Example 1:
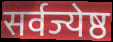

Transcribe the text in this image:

सर्वज्येष्ठ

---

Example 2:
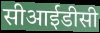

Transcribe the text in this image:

सीआईडीसी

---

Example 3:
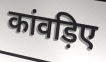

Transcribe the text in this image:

कांवड़िए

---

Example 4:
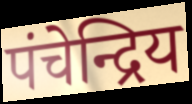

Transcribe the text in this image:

पंचेन्द्रिय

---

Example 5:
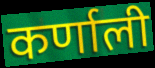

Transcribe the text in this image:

कर्णाली